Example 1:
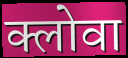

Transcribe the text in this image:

क्लोवा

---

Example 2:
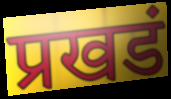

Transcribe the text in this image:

प्रखडं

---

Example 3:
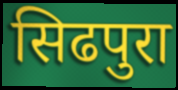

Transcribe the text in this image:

सिढपुरा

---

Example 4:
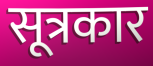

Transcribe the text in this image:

सूत्रकार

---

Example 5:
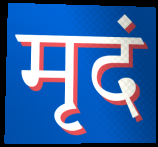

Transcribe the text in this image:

मृदं